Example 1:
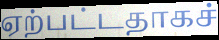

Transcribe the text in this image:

ஏற்பட்டதாகச்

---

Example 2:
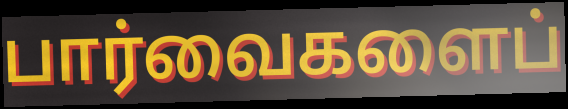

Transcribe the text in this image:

பார்வைகளைப்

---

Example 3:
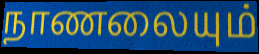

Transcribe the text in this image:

நாணலையும்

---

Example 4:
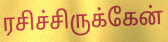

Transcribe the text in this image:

ரசிச்சிருக்கேன்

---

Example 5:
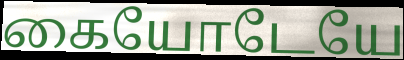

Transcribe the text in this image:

கையோடேயே